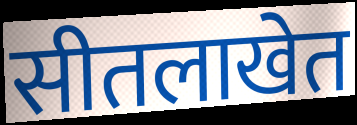
सीतलाखेत